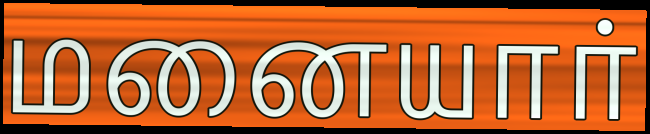
மனையார்